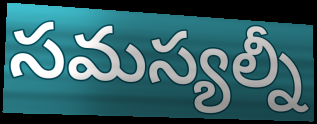
సమస్యల్నీ